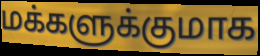
மக்களுக்குமாக